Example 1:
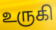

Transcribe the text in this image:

உருகி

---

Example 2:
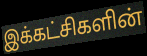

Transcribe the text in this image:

இக்கட்சிகளின்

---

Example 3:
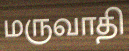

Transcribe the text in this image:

மருவாதி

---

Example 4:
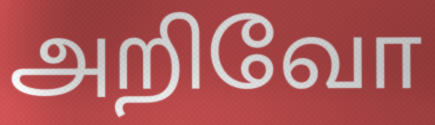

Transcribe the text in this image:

அறிவோ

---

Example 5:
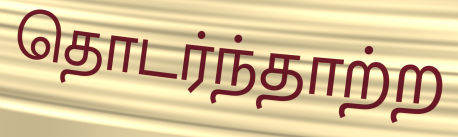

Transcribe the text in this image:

தொடர்ந்தாற்ற